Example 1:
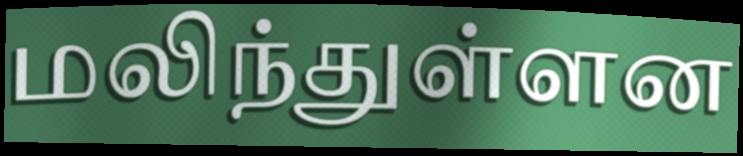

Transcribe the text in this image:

மலிந்துள்ளன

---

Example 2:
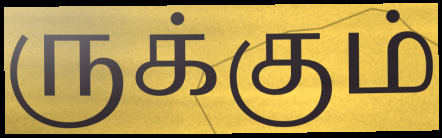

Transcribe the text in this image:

ருக்கும்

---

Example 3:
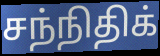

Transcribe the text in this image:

சந்நிதிக்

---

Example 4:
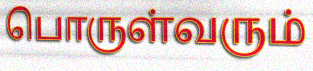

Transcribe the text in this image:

பொருள்வரும்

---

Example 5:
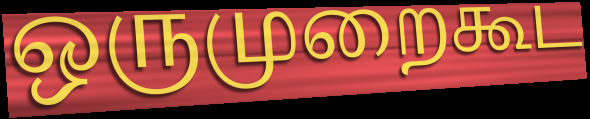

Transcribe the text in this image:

ஒருமுறைகூட